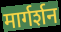
मार्गर्शन